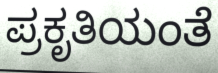
ಪ್ರಕೃತಿಯಂತೆ